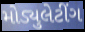
મોડ્યુલેટીંગ